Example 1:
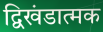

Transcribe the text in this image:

द्विखंडात्मक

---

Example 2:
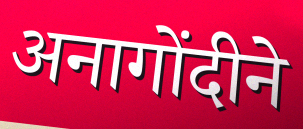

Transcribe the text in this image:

अनागोंदीने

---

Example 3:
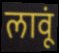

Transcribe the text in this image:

लावूं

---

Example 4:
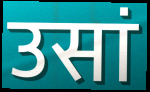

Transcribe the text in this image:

उसां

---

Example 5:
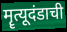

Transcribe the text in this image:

मॄत्यूदंडाची